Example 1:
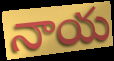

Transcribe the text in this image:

నాయ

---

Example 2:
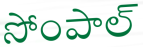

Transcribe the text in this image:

సోంపాల్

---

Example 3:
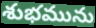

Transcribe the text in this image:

శుభమును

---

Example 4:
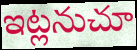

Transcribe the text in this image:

ఇట్లనుచూ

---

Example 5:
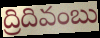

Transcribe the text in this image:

ద్రిదివంబు